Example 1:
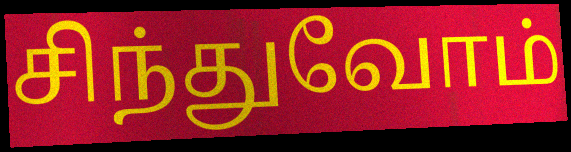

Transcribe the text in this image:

சிந்துவோம்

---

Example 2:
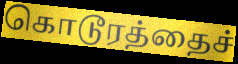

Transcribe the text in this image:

கொடூரத்தைச்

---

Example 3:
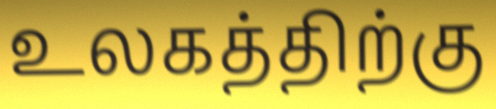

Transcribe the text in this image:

உலகத்திற்கு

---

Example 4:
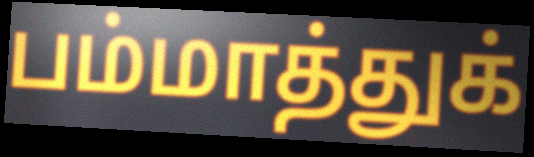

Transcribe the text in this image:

பம்மாத்துக்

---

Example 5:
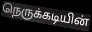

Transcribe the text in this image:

நெருக்கடியின்